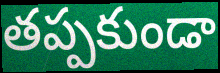
తప్పకుండా